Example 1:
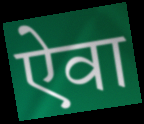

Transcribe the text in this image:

ऐवा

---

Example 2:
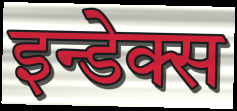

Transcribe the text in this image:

इन्डेक्स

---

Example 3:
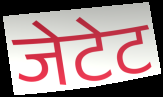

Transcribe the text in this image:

जेटेट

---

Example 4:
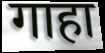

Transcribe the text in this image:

गाहा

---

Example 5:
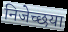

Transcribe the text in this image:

निजेच्छया